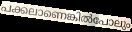
പക്കലാണെങ്കിൽപോലും